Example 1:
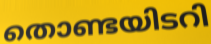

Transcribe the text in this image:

തൊണ്ടയിടറി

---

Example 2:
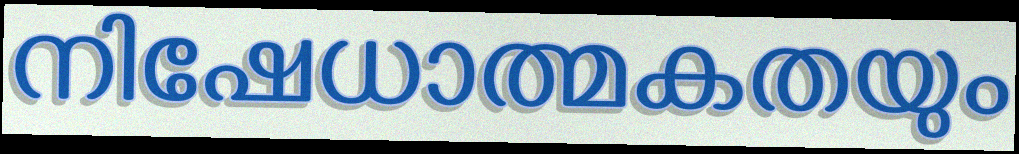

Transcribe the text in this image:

നിഷേധാത്മകതയും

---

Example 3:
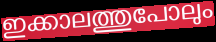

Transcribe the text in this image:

ഇക്കാലത്തുപോലും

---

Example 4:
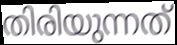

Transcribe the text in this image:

തിരിയുന്നത്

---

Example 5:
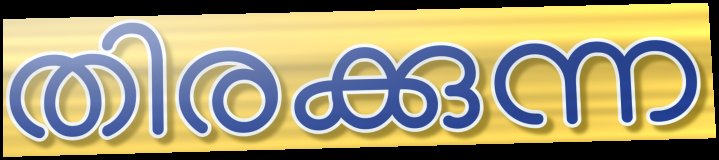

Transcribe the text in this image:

തിരക്കുന്ന